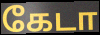
கேடா